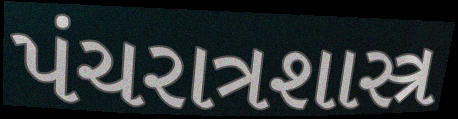
પંચરાત્રશાસ્ત્ર